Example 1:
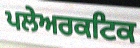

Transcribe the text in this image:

ਪਲੇਅਰਕਟਿਕ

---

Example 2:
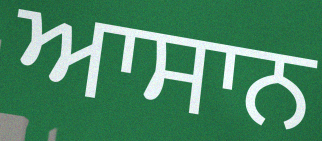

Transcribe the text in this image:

ਆਸਾਨ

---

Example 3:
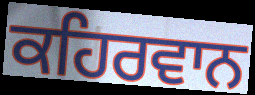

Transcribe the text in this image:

ਕਹਿਰਵਾਨ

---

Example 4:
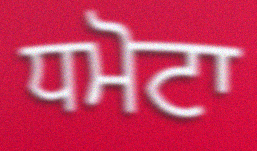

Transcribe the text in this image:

ਧਮੋਟਾ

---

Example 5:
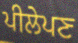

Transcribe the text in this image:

ਪੀਲੇਪਣ